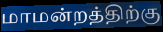
மாமன்றத்திற்கு